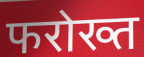
फरोख्त